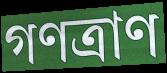
গণত্রাণ